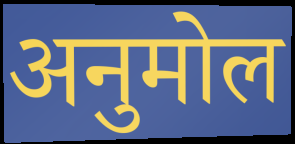
अनुमोल